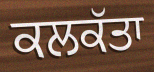
ਕਲਕੱਤਾ